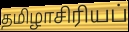
தமிழாசிரியப்